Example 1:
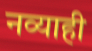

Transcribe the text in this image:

नव्याही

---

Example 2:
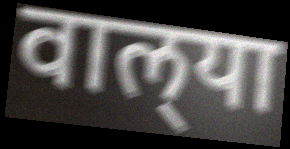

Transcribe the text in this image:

वाल्या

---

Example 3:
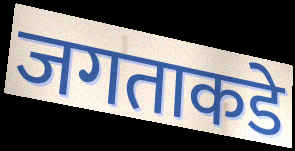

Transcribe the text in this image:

जगताकडे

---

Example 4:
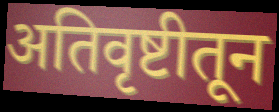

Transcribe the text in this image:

अतिवृष्टीतून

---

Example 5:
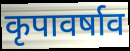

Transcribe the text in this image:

कृपावर्षाव